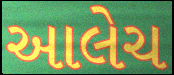
આલેચ